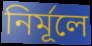
নির্মূলে